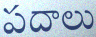
పదాలు